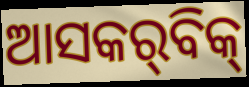
ଆସକର୍‌ବିକ୍